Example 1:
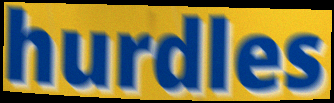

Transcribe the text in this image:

hurdles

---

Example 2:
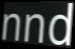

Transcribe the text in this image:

nnd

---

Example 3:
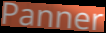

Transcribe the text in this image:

Panner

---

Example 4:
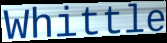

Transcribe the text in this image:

Whittle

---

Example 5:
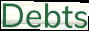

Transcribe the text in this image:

Debts